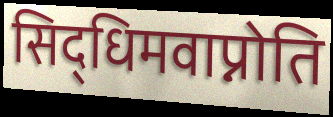
सिद्धिमवाप्नोति